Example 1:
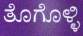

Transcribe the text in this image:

ತೊಗೊಳ್ಳಿ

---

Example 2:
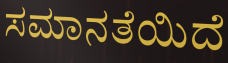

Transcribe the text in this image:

ಸಮಾನತೆಯಿದೆ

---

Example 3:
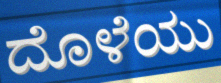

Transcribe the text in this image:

ದೊಳೆಯು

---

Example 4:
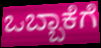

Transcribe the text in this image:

ಒಬ್ಬಾಕೆಗೆ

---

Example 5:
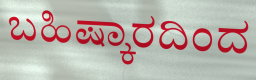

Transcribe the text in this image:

ಬಹಿಷ್ಕಾರದಿಂದ